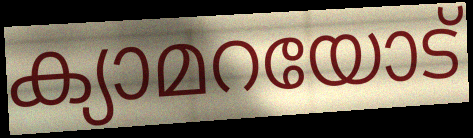
ക്യാമറയോട്